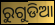
ରୁଗୁଡିଆ